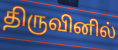
திருவினில்